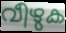
വീഴുക